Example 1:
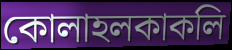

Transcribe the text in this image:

কোলাহলকাকলি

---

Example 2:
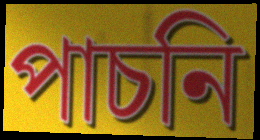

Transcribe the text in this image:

পাচনি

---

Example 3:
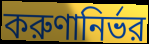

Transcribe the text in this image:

করুণানির্ভর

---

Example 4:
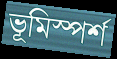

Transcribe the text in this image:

ভূমিস্পর্শ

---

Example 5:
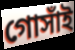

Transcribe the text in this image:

গোসাঁই